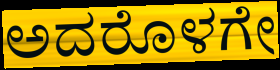
ಅದರೊಳಗೇ